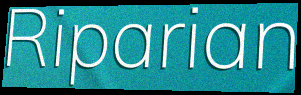
Riparian